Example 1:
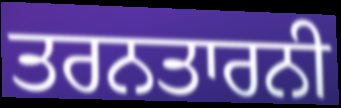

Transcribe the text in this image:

ਤਰਨਤਾਰਨੀ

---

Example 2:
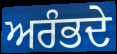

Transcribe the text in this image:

ਅਰੰਭਦੇ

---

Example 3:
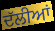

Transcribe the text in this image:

ਦੱਲੀਆਂ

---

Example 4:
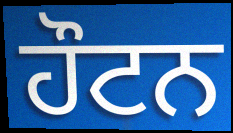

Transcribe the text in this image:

ਹੌਟਨ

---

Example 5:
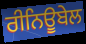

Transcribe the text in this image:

ਰੀਨਿਊਬੇਲ